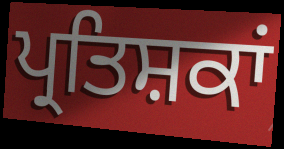
ਪ੍ਰਤਿਸ਼ਕਾਂ